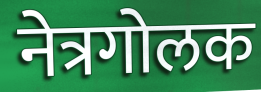
नेत्रगोलक